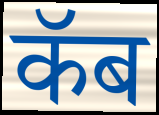
कॅब